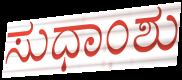
ಸುಧಾಂಶು